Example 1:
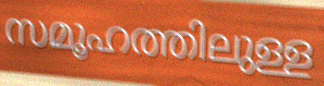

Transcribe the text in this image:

സമൂഹത്തിലുള്ള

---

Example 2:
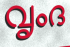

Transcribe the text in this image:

വൃംദ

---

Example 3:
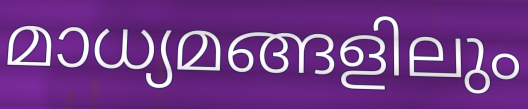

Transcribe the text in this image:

മാധ്യമങ്ങളിലും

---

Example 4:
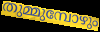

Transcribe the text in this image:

തുമ്മുമ്പോഴും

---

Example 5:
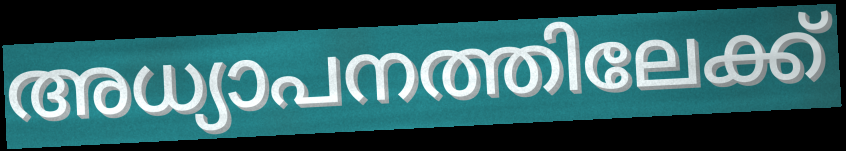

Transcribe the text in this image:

അധ്യാപനത്തിലേക്ക്